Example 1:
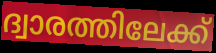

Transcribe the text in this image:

ദ്വാരത്തിലേക്ക്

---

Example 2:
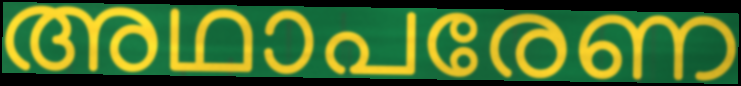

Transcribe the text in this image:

അഥാപരേണ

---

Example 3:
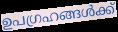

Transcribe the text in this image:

ഉപഗ്രഹങ്ങൾക്ക്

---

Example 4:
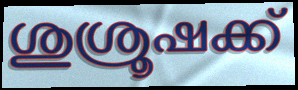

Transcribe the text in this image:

ശുശ്രൂഷക്ക്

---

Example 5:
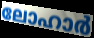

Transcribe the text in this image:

ലോഹാർ